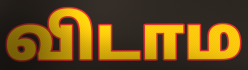
விடாம